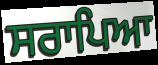
ਸਰਾਪਿਆ